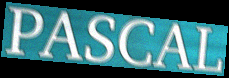
PASCAL